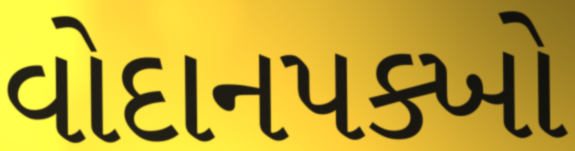
વોદાનપક્ખો